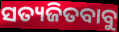
ସତ୍ୟଜିତବାବୁ